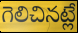
గెలిచినట్లే